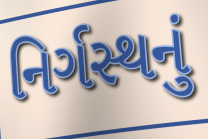
નિર્ગસ્થનું